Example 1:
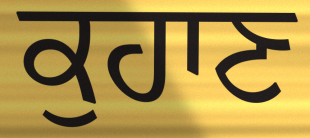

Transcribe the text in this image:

ਕੁਹਾਣ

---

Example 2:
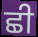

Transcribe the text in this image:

ਛੀ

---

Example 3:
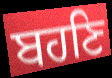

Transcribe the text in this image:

ਬਹਣਿ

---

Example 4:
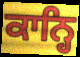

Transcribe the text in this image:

ਕਾਨ੍ਹਿ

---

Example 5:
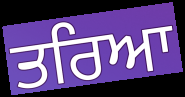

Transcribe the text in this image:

ਤਰਿਆ